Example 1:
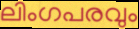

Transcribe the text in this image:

ലിംഗപരവും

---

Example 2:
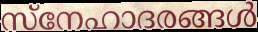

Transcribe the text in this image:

സ്നേഹാദരങ്ങൾ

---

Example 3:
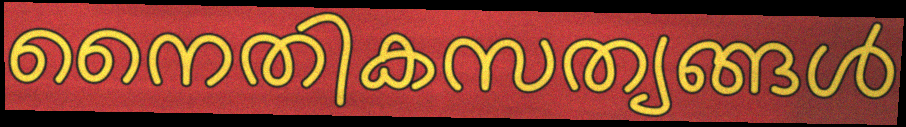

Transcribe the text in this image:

നൈതികസത്യങ്ങൾ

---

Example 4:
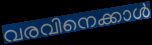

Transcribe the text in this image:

വരവിനെക്കാൾ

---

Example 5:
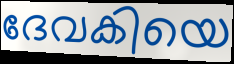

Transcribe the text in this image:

ദേവകിയെ